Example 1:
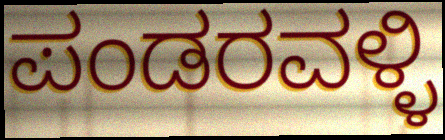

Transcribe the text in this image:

ಪಂಡರವಳ್ಳಿ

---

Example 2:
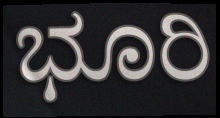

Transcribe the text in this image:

ಭೂರಿ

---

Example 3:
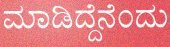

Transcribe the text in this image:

ಮಾಡಿದ್ದೆನೆಂದು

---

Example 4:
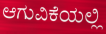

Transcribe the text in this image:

ಆಗುವಿಕೆಯಲ್ಲಿ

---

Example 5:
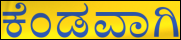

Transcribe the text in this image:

ಕೆಂಡವಾಗಿ